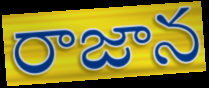
రాజాన